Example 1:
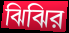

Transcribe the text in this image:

ঝিঝির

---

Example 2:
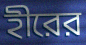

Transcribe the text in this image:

হীরের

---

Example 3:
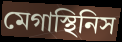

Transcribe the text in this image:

মেগাস্থিনিস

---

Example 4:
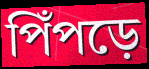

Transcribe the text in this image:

পিঁপড়ে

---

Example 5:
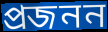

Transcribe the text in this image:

প্রজনন